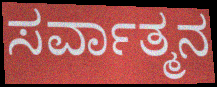
ಸರ್ವಾತ್ಮನ